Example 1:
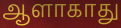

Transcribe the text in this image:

ஆளாகாது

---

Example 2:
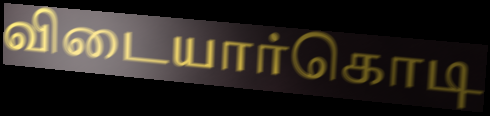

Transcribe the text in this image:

விடையார்கொடி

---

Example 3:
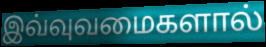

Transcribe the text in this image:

இவ்வுவமைகளால்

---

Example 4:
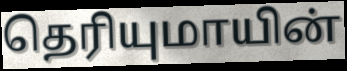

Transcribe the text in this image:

தெரியுமாயின்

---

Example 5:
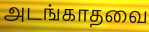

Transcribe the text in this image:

அடங்காதவை